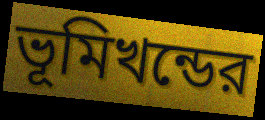
ভূমিখন্ডের